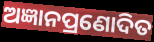
ଅଜ୍ଞାନପ୍ରଣୋଦିତ